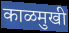
काळमुखी